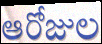
ఆరోజుల